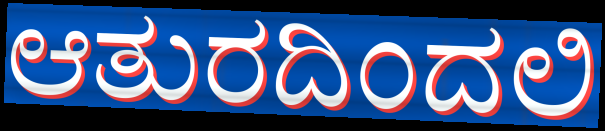
ಆತುರದಿಂದಲಿ